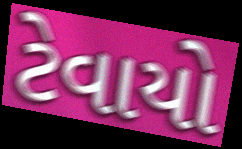
ટેવાયો